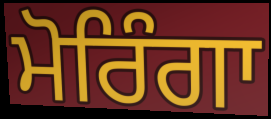
ਮੋਰਿੰਗਾ